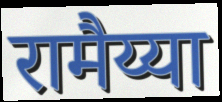
रामैय्या